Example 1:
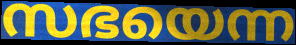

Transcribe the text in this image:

സഭയെന്ന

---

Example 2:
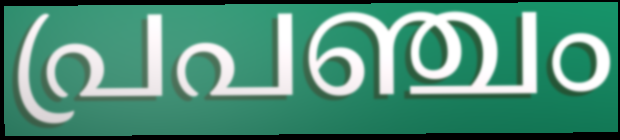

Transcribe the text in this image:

പ്രപഞ്ചം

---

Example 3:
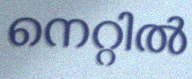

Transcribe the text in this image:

നെറ്റിൽ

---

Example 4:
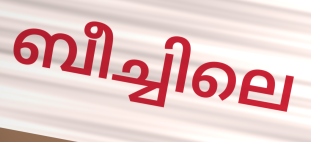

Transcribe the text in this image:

ബീച്ചിലെ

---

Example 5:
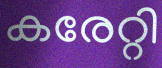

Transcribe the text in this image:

കരേറ്റി